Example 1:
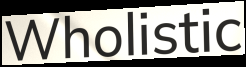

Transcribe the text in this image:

Wholistic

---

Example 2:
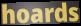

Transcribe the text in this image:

hoards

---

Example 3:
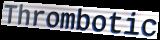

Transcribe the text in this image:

Thrombotic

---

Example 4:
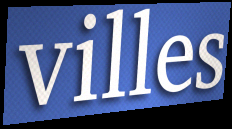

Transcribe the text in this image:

villes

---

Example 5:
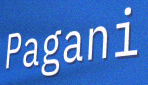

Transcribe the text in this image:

Pagani